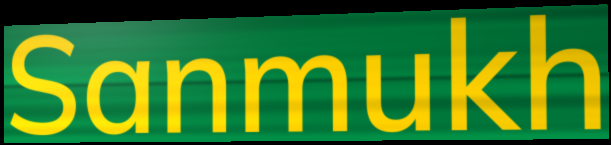
Sanmukh